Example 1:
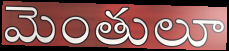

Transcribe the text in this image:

మెంతులూ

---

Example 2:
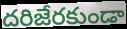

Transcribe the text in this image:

దరిజేరకుండా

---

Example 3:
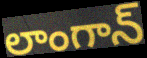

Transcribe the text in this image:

లాంగాన్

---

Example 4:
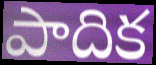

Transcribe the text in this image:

పాదిక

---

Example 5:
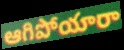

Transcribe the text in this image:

ఆగిపోయారా